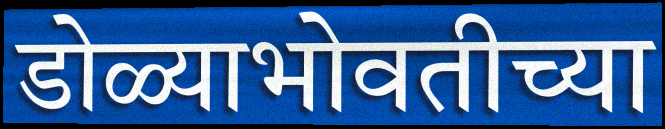
डोळ्याभोवतीच्या